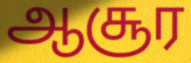
ஆசூர